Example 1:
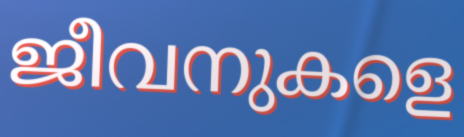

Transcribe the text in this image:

ജീവനുകളെ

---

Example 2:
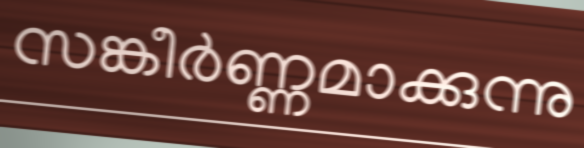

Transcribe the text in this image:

സങ്കീർണ്ണമാക്കുന്നു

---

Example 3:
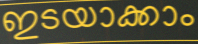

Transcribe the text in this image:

ഇടയാക്കാം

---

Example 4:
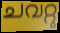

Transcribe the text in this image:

ചവറ്റു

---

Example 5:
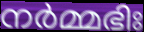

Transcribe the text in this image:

നർമ്മഭിഃ